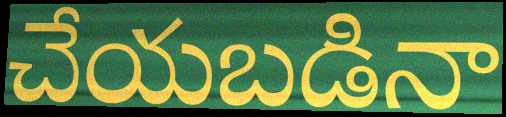
చేయబడినా